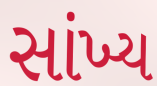
સાંખ્ય